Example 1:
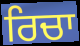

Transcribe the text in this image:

ਰਿਚਾ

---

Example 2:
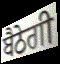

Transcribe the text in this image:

ਬੈਠੇਗੀ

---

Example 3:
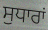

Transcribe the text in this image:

ਸੁਧਾਰਾਂ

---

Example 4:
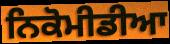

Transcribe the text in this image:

ਨਿਕੋਮੀਡੀਆ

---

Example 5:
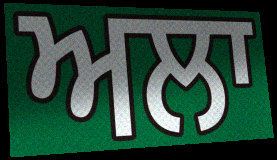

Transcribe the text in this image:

ਅਲਾ